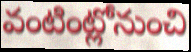
వంటింట్లోనుంచి